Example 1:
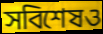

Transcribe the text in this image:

সবিশেষও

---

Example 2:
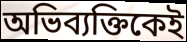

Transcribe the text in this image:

অভিব্যক্তিকেই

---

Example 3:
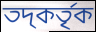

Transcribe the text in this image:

তদ্‌কর্তৃক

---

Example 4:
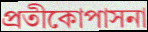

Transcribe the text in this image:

প্রতীকোপাসনা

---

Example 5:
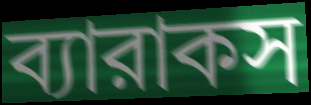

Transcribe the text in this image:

ব্যারাকস